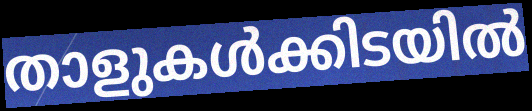
താളുകൾക്കിടയിൽ